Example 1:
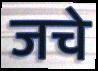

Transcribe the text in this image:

जचे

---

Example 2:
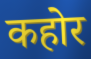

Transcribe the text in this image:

कहोर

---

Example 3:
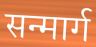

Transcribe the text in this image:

सन्मार्ग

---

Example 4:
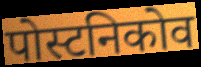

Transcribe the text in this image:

पोस्टनिकोव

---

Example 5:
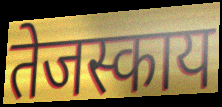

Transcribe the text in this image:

तेजस्काय